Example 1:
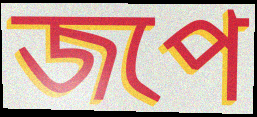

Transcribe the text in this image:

জপে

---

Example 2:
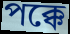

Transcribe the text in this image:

পক্কে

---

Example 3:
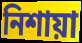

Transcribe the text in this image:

নিশায়া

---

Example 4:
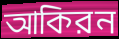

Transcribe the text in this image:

আকিরন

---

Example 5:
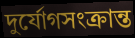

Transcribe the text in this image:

দুর্যোগসংক্রান্ত